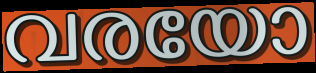
വരയോ